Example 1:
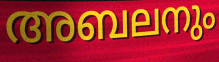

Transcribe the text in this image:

അബലനും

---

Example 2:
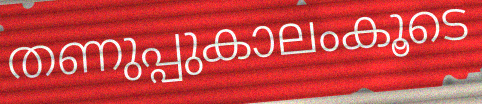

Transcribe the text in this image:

തണുപ്പുകാലംകൂടെ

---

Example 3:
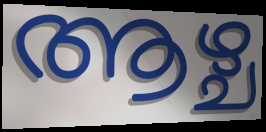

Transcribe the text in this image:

ആഴ്ച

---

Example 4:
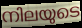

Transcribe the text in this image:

നിലയുടെ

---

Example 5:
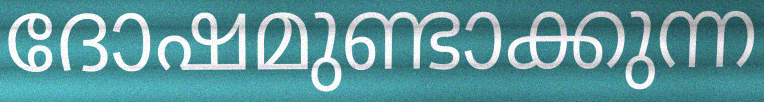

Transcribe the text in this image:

ദോഷമുണ്ടാക്കുന്ന